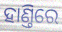
ହାଣ୍ତିରେ